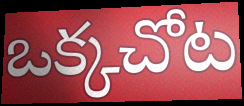
ఒక్కచోట